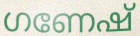
ഗണേഷ്